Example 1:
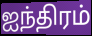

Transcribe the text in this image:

ஐந்திரம்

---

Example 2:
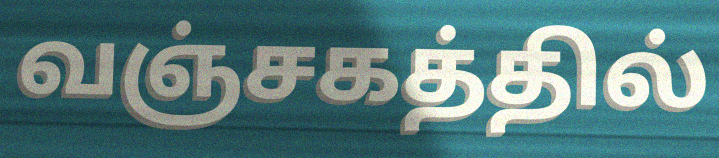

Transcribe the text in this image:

வஞ்சகத்தில்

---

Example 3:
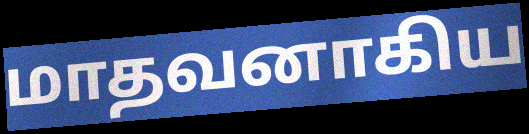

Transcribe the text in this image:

மாதவனாகிய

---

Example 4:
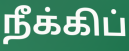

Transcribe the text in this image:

நீக்கிப்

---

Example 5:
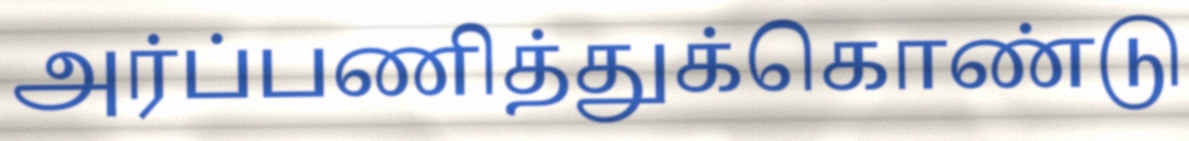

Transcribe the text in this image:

அர்ப்பணித்துக்கொண்டு